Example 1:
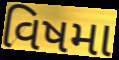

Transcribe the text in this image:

વિષમા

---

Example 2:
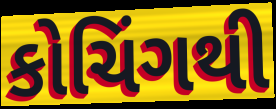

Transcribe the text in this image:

કોચિંગથી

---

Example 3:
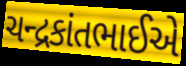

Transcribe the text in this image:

ચન્દ્રકાંતભાઈએ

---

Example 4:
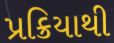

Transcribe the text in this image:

પ્રક્રિયાથી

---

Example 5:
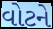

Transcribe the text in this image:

વોટને